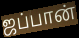
ஜப்பான்